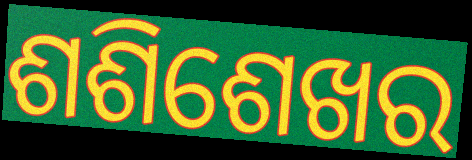
ଶଶିଶେଖର